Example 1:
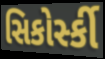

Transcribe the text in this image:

સિકોર્સ્કી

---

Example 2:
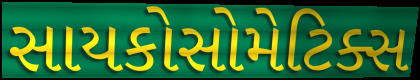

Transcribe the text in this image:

સાયકોસોમેટિક્સ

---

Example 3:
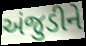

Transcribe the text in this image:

અંજુડીને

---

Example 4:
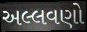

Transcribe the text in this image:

અલ્લવણો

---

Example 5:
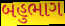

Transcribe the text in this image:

બહુભાગ